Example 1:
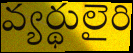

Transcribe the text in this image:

వ్యర్థులైరి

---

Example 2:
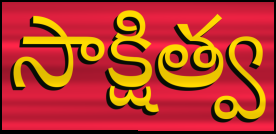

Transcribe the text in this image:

సాక్షిత్వ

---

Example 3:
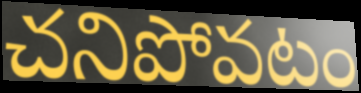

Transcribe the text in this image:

చనిపోవటం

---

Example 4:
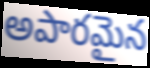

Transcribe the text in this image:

అపారమైన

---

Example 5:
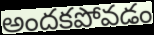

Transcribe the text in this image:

అందకపోవడం